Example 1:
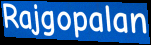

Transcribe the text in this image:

Rajgopalan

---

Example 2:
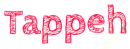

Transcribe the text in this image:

Tappeh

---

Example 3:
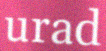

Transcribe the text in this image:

urad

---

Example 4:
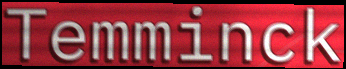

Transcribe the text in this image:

Temminck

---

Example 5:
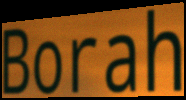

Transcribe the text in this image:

Borah